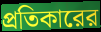
প্রতিকারের